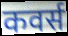
कवर्स